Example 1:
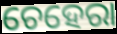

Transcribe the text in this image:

ଚେହେରା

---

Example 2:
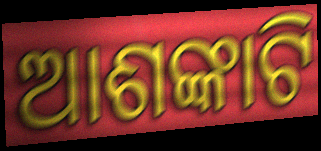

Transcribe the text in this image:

ଆଶଙ୍କାଟି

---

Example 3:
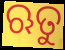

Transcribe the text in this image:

ଋତୁ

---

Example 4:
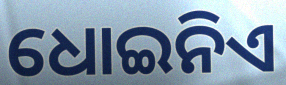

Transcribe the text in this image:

ଧୋଇନିଏ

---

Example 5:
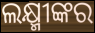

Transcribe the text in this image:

ଲକ୍ଷ୍ମୀଙ୍କର